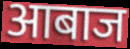
आबाज